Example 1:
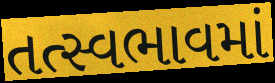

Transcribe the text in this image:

તત્સ્વભાવમાં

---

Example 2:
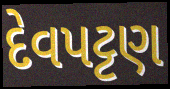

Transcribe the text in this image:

દેવપટ્ટણ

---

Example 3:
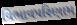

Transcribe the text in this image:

વિભાવપરિણામ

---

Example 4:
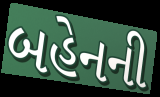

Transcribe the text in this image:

બહેનની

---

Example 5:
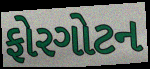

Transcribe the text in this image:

ફોરગોટન